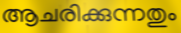
ആചരിക്കുന്നതും